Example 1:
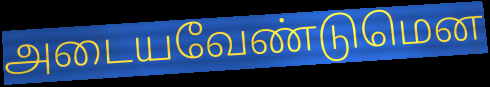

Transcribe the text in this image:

அடையவேண்டுமென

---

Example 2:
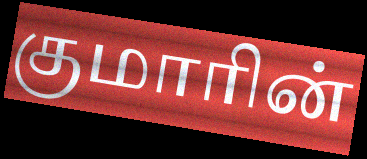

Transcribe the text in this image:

குமாரின்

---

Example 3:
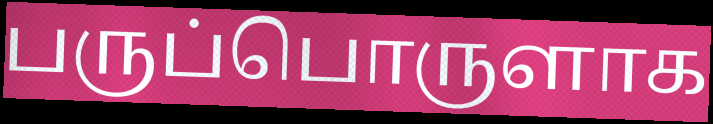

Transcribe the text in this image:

பருப்பொருளாக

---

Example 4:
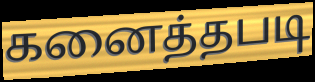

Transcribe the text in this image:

கனைத்தபடி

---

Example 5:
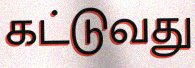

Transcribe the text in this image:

கட்டுவது